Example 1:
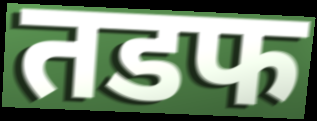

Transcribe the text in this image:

तडफ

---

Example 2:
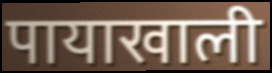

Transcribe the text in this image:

पायाखाली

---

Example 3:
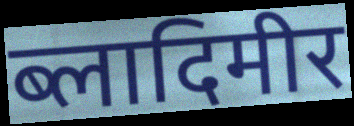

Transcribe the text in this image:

ब्लादिमीर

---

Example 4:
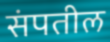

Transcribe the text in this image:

संपतील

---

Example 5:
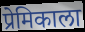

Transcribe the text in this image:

प्रेमिकाला